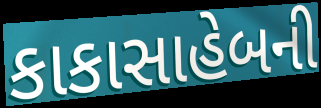
કાકાસાહેબની